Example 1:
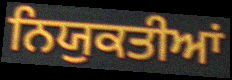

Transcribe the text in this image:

ਨਿਯੁਕਤੀਆਂ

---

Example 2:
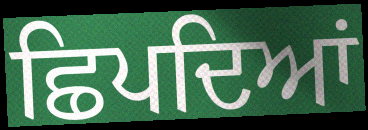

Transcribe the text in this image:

ਛਿਪਦਿਆਂ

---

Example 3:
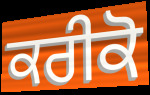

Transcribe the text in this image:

ਕਰੀਕੋ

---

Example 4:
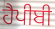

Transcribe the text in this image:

ਹੈਪੀਬੀ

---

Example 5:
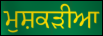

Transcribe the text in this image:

ਮੁਸ਼ਕੜੀਆ